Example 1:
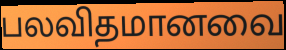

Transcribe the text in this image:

பலவிதமானவை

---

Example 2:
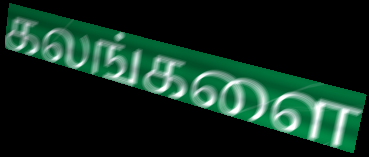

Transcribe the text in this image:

கலங்களை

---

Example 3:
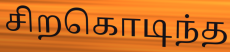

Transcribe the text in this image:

சிறகொடிந்த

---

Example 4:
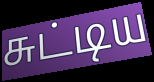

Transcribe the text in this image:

சுட்டிய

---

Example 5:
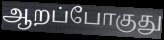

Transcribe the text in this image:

ஆறப்போகுது